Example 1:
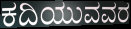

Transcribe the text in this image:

ಕದಿಯುವವರ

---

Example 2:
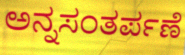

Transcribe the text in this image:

ಅನ್ನಸಂತರ್ಪಣೆ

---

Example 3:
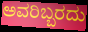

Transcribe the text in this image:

ಅವರಿಬ್ಬರದು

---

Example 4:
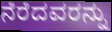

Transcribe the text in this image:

ನೆರೆದವರನ್ನು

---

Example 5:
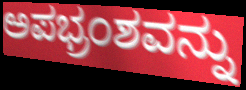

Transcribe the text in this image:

ಅಪಭ್ರಂಶವನ್ನು